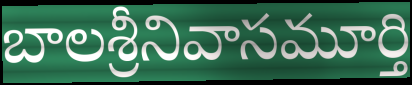
బాలశ్రీనివాసమూర్తి